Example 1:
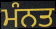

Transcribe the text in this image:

ਮੰਨਤ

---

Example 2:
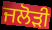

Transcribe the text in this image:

ਜਲੋੜੀ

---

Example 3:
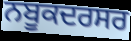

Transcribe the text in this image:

ਨਬੂਕਦਰਸਰ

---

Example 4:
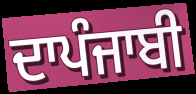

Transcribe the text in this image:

ਦਾਪੰਜਾਬੀ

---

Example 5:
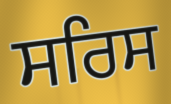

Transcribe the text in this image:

ਸਰਿਸ